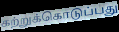
கற்றுக்கொடுப்பது